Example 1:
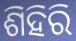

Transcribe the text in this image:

ଶିହିରି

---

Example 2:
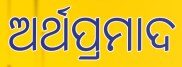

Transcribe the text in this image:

ଅର୍ଥପ୍ରମାଦ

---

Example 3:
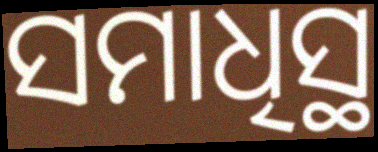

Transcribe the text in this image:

ସମାଧିସ୍ଥ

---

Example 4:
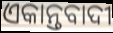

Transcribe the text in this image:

ଏକାନ୍ତବାଦୀ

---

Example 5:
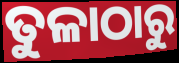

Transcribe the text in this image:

ତୁଳାଠାରୁ